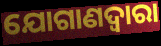
ଯୋଗାଣଦ୍ଵାରା